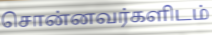
சொன்னவர்களிடம்